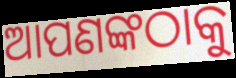
ଆପଣଙ୍କଠାକୁ